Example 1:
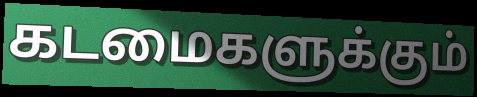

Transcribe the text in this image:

கடமைகளுக்கும்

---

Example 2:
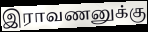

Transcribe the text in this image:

இராவணனுக்கு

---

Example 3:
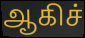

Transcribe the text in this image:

ஆகிச்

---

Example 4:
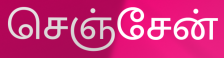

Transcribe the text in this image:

செஞ்சேன்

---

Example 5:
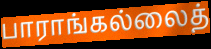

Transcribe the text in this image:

பாராங்கல்லைத்